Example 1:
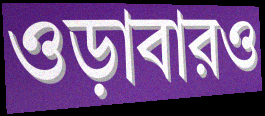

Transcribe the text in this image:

ওড়াবারও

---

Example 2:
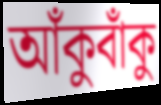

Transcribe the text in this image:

আঁকুবাঁকু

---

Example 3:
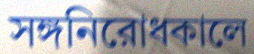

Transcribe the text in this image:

সঙ্গনিরোধকালে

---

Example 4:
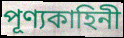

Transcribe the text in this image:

পূণ্যকাহিনী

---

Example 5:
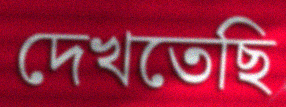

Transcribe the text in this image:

দেখতেছি